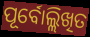
ପୂର୍ବୋଲ୍ଲିଖିତ